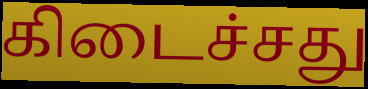
கிடைச்சது